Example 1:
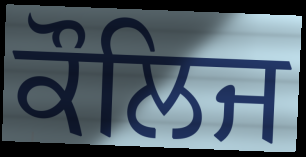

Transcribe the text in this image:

ਕੌਲਿਜ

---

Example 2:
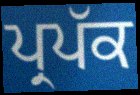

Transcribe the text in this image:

ਪ੍ਰਪੱਕ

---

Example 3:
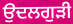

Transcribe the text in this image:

ਉਦਲਗੁੜੀ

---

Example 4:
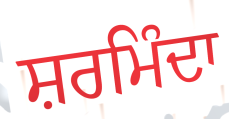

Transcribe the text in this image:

ਸ਼ਰਮਿੰਦਾ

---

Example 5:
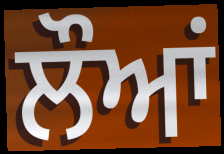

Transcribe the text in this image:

ਲੌਆਂ